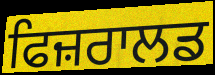
ਫਿਜ਼ਰਾਲਡ